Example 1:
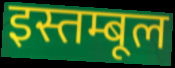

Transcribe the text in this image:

इस्तम्बूल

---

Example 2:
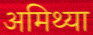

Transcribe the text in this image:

अमिथ्या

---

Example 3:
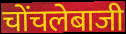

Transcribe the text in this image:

चोंचलेबाजी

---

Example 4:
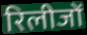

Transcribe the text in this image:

रिलीजों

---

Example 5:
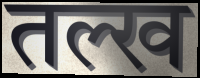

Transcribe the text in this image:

तल्ख